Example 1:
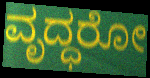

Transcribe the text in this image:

ವೃದ್ಧರೋ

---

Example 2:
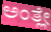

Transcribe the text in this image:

ಅಂತ್ಲೇ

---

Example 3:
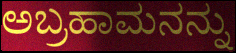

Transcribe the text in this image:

ಅಬ್ರಹಾಮನನ್ನು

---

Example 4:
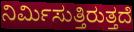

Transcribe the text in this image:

ನಿರ್ಮಿಸುತ್ತಿರುತ್ತದೆ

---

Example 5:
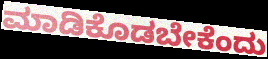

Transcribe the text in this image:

ಮಾಡಿಕೊಡಬೇಕೆಂದು